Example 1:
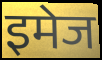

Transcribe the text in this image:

इमेज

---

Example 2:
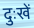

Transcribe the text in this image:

दुःखें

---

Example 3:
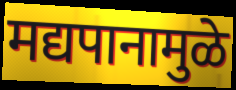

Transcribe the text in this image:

मद्यपानामुळे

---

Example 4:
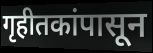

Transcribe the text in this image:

गृहीतकांपासून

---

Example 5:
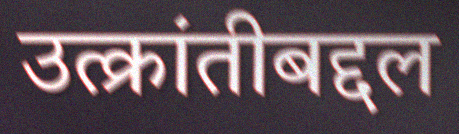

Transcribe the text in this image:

उत्क्रांतीबद्दल